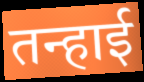
तन्हाई